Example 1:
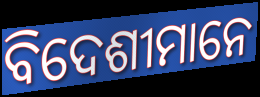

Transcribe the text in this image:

ବିଦେଶୀମାନେ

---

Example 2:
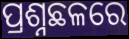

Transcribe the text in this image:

ପ୍ରଶ୍ନଛଳରେ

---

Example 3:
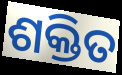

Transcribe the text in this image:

ଶକ୍ତିତ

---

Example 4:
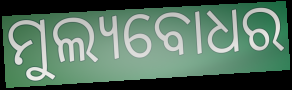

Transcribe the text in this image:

ମୁଲ୍ୟବୋଧର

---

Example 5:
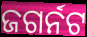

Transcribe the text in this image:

ଜଗର୍ନଟ